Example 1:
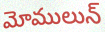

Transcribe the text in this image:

మోములున్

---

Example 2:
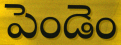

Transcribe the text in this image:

పెండెం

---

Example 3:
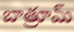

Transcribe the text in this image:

బాత్రూమ్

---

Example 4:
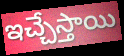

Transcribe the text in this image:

ఇచ్చేస్తాయి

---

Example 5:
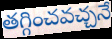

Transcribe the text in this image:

తగ్గించవచ్చనే